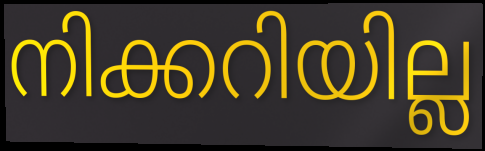
നിക്കറിയില്ല